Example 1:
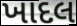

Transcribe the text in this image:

ખાદલ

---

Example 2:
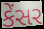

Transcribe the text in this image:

કેંસર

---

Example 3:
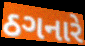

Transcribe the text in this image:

ઠગનારે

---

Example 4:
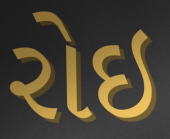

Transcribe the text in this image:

રોઇ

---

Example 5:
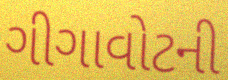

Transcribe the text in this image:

ગીગાવોટની